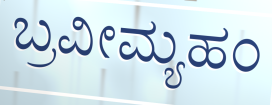
ಬ್ರವೀಮ್ಯಹಂ